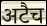
अटैच